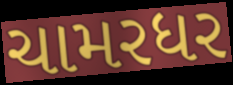
ચામરધર